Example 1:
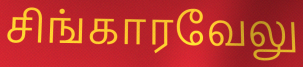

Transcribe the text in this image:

சிங்காரவேலு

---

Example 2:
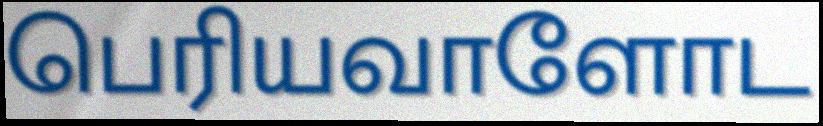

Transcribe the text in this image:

பெரியவாளோட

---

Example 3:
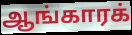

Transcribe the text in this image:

ஆங்காரக்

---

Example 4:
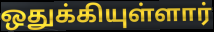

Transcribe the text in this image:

ஒதுக்கியுள்ளார்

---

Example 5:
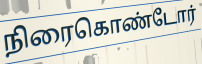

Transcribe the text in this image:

நிரைகொண்டோர்